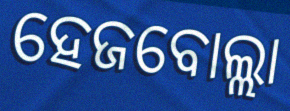
ହେଜବୋଲ୍ଲା